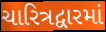
ચારિત્રદ્વારમાં